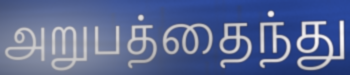
அறுபத்தைந்து